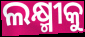
ଲକ୍ଷ୍ମୀକୁ